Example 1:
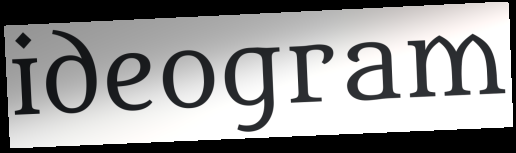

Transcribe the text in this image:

ideogram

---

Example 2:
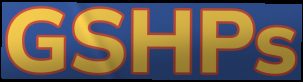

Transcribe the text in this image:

GSHPs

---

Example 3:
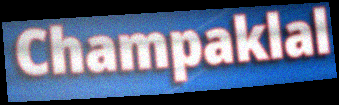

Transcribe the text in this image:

Champaklal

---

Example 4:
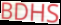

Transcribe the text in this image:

BDHS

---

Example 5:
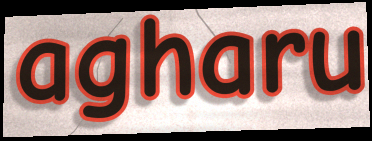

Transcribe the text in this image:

agharu